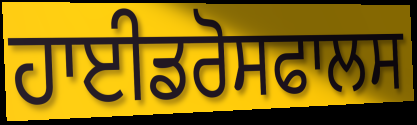
ਹਾਈਡਰੋਸਫਾਲਸ